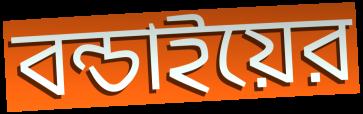
বন্ডাইয়ের